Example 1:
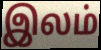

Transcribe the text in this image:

இலம்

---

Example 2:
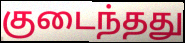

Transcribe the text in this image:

குடைந்தது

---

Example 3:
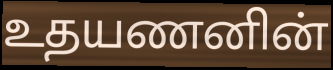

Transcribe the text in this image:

உதயணனின்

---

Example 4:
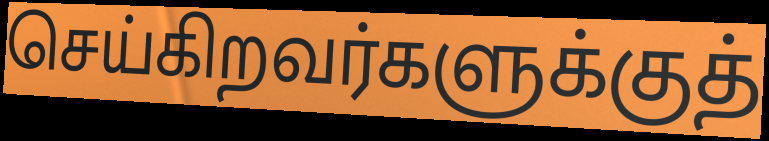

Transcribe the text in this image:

செய்கிறவர்களுக்குத்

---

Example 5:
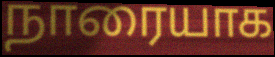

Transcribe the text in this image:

நாரையாக